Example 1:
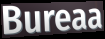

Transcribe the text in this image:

Bureaa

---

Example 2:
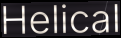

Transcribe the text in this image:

Helical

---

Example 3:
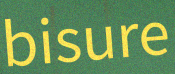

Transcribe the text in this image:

bisure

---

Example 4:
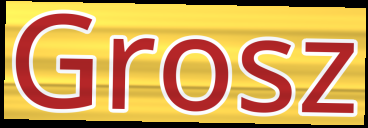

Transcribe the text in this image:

Grosz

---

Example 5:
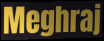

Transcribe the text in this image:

Meghraj